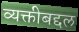
व्यक्तीबद्दल